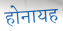
होनायह